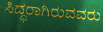
ಸಿದ್ಧರಾಗಿರುವವರು